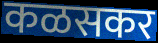
कळसकर